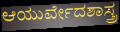
ಆಯುರ್ವೇದಶಾಸ್ತ್ರ